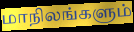
மாநிலங்களும்